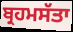
ਬ੍ਰਹਮਸੱਤਾ